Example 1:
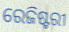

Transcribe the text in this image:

ରେଜିଷ୍ଟରୀ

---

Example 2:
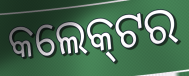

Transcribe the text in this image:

କଲେକ୍‌ଟର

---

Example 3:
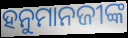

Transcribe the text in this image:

ହନୁମାନଜୀଙ୍କ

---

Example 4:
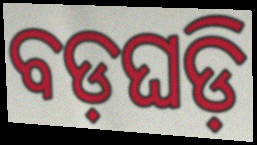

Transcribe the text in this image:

ବଡ଼ଘଡ଼ି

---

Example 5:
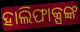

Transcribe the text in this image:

ହାଲିଫାକ୍ସଙ୍କ